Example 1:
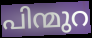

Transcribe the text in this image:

പിന്മുറ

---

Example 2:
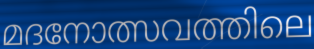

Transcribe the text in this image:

മദനോത്സവത്തിലെ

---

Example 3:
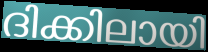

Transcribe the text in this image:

ദിക്കിലായി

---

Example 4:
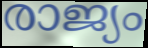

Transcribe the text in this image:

രാജ്യം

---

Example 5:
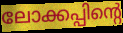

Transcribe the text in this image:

ലോക്കപ്പിന്റെ